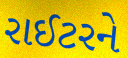
રાઈટરને